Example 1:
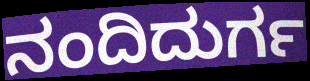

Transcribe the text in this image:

ನಂದಿದುರ್ಗ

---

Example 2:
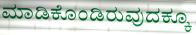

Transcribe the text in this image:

ಮಾಡಿಕೊಂಡಿರುವುದಕ್ಕೂ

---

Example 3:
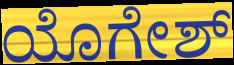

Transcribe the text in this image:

ಯೊಗೇಶ್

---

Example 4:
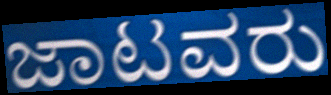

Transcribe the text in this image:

ಜಾಟವರು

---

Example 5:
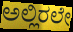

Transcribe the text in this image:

ಅಲ್ಲಿರಲೇ